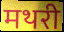
मथरी